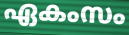
ഏകംസം